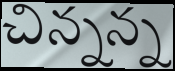
చిన్నన్న